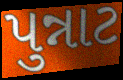
પુન્નાટ